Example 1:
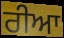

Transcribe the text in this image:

ਰੀਆ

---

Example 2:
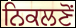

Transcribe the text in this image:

ਨਿਕਲਣੋਂ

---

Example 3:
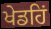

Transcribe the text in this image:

ਖੇਡਹਿਂ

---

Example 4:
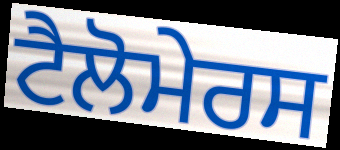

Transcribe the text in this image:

ਟੈਲੋਮੇਰਸ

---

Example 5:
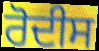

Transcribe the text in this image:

ਰੋਦੀਸ